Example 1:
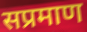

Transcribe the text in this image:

सप्रमाण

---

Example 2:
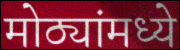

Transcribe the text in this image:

मोठ्यांमध्ये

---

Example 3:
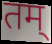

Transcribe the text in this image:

तम्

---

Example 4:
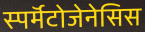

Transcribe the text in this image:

स्पर्मॅटोजेनेसिस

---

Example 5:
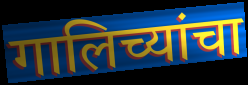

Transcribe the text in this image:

गालिच्यांचा